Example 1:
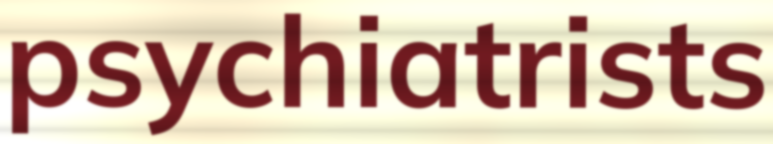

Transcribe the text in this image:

psychiatrists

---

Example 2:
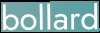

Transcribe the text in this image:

bollard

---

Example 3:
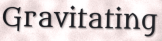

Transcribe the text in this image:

Gravitating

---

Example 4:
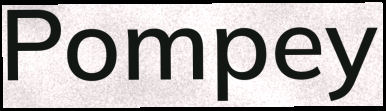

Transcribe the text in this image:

Pompey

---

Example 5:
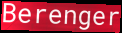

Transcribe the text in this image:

Berenger